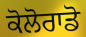
ਕੋਲੋਰਾਡੋ